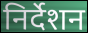
निर्देशन